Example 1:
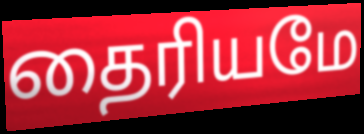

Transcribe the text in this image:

தைரியமே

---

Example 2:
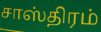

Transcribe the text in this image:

சாஸ்திரம்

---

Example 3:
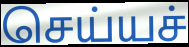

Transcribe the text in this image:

செய்யச்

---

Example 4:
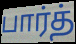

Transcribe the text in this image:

பார்த்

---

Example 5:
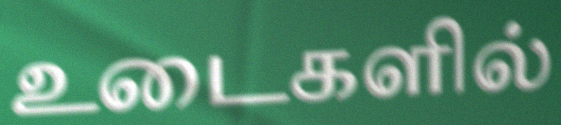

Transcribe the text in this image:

உடைகளில்